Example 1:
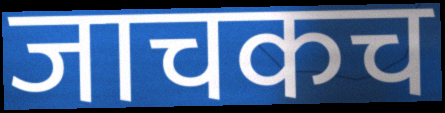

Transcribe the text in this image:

जाचकच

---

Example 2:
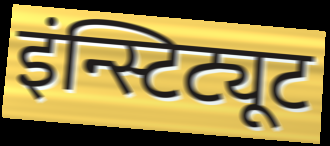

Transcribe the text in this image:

इंन्स्टिट्यूट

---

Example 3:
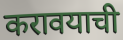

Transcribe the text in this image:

करावयाची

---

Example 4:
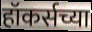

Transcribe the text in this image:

हॉकर्सच्या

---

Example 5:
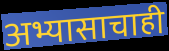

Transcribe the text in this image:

अभ्यासाचाही